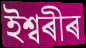
ইশ্বৰীৰ